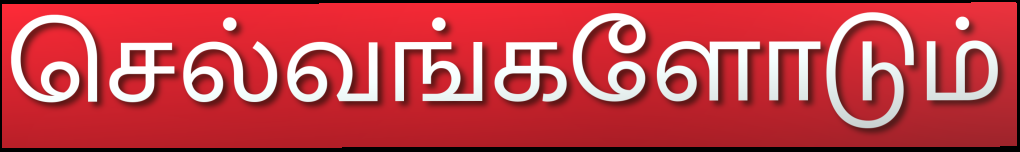
செல்வங்களோடும்